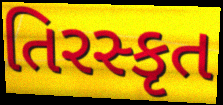
તિરસ્કૃત